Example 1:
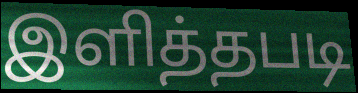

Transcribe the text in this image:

இளித்தபடி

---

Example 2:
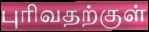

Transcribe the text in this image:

புரிவதற்குள்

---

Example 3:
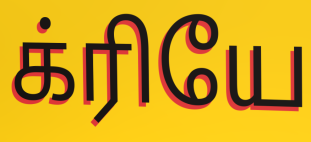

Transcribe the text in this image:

க்ரியே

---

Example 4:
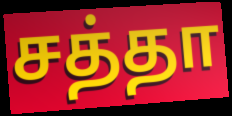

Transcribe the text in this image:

சத்தா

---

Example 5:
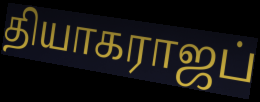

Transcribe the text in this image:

தியாகராஜப்